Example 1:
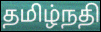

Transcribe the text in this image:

தமிழ்நதி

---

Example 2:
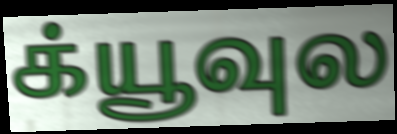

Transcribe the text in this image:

க்யூவுல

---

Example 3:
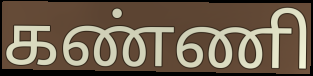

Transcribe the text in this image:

கண்ணி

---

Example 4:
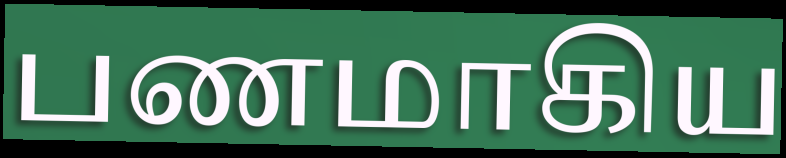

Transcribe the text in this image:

பணமாகிய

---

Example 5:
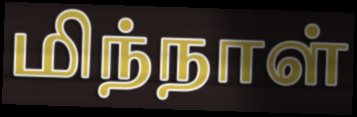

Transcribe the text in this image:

மிந்நாள்